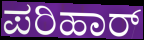
ಪರಿಹಾರ್